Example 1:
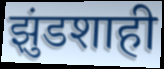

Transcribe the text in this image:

झुंडशाही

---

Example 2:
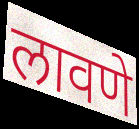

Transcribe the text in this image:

लावणे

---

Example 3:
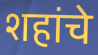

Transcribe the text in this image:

शहांचे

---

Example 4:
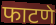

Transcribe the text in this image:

फाटणे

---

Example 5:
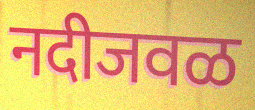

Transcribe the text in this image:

नदीजवळ